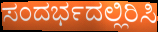
ಸಂದರ್ಭದಲ್ಲಿರಿಸಿ